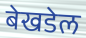
बेखडेल